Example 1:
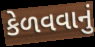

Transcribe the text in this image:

કેળવવાનું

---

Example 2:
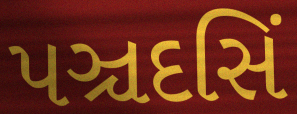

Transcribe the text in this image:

પઞ્ચદસિં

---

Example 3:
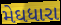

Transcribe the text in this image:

મેઘધારા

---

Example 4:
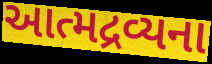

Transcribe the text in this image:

આત્મદ્રવ્યના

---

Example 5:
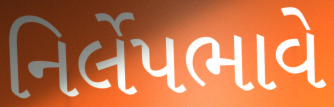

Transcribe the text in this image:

નિર્લેપભાવે